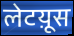
लेटय़ूस